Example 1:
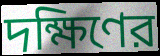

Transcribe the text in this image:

দক্ষিণের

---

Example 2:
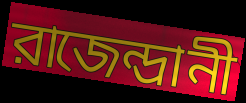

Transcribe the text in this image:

রাজেন্দ্রানী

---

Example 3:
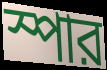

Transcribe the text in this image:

স্পার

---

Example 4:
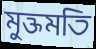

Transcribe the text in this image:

মুক্তমতি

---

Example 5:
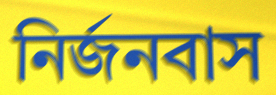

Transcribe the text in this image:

নির্জনবাস